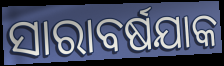
ସାରାବର୍ଷଯାକ